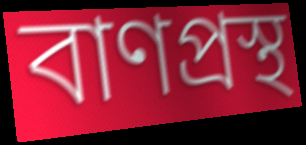
বাণপ্রস্থ